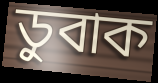
ডুবাক